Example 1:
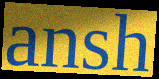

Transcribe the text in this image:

ansh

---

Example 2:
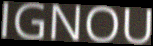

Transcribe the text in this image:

IGNOU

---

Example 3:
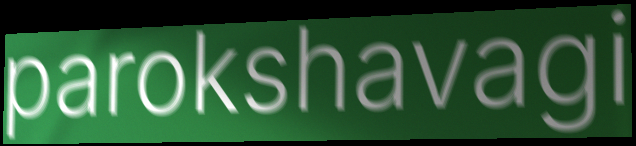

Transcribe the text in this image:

parokshavagi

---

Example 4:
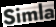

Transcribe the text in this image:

Simla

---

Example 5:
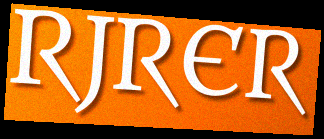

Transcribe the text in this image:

RJRER